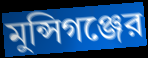
মুন্সিগঞ্জের